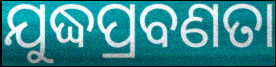
ଯୁଦ୍ଧପ୍ରବଣତା